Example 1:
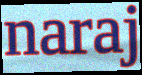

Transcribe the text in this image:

naraj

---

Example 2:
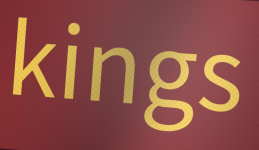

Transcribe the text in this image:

kings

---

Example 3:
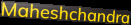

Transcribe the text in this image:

Maheshchandra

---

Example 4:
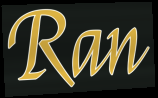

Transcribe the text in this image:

Ran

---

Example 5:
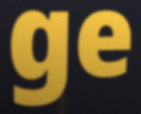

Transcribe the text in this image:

ge